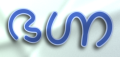
ഭഗ്ന